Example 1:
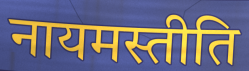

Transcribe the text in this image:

नायमस्तीति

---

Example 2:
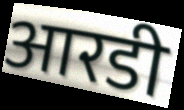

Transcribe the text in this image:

आरडी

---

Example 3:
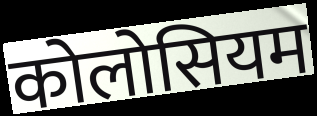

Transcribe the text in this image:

कोलोसियम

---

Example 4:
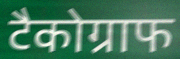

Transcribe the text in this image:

टैकोग्राफ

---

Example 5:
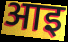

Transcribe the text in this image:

आइ